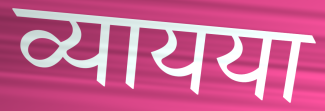
व्यायया